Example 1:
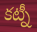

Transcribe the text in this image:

కట్నీ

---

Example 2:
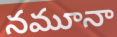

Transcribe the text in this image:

నమూనా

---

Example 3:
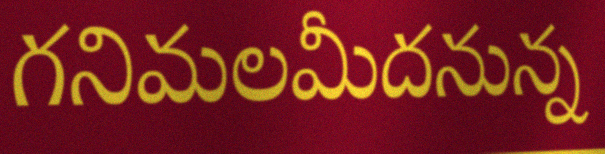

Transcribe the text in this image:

గనిమలమీదనున్న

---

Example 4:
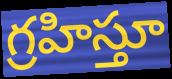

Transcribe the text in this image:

గ్రహిస్తూ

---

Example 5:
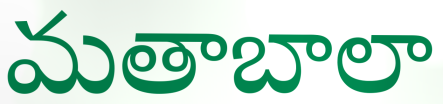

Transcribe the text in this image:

మతాబాలా